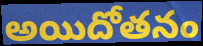
అయిదోతనం